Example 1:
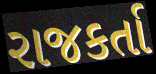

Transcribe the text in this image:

રાજકર્તા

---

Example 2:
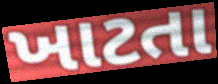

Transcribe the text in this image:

ખાટતા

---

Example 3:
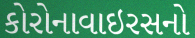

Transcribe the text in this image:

કોરોનાવાઇરસનો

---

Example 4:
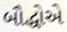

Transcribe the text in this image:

બૌદ્ધોએ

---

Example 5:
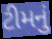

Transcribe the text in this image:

ટીમનું